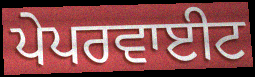
ਪੇਪਰਵਾਈਟ